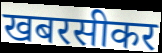
खबरसीकर